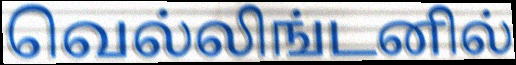
வெல்லிங்டனில்